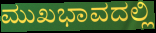
ಮುಖಭಾವದಲ್ಲಿ